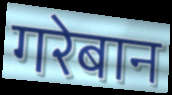
गरेबान